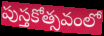
పుస్తకోత్సవంలో